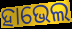
ହାଭେଲ